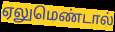
ஏலுமெண்டால்